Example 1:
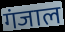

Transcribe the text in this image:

गंजाल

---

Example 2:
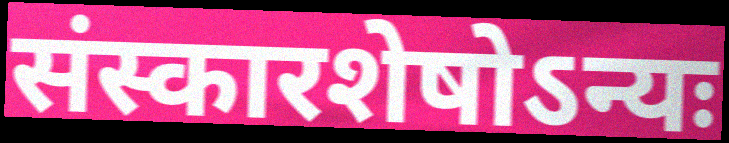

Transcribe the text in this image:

संस्कारशेषोऽन्यः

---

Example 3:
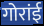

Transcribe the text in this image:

गोरांई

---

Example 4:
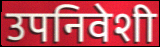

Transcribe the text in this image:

उपनिवेशी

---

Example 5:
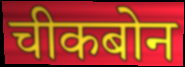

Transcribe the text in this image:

चीकबोन